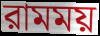
রামময়